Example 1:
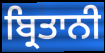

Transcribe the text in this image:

ਬ੍ਰਿਤਾਨੀ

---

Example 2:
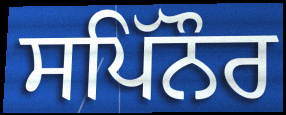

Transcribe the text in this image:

ਸਪਿੱਨੌਰ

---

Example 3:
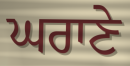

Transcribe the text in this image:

ਘਰਾਣੇ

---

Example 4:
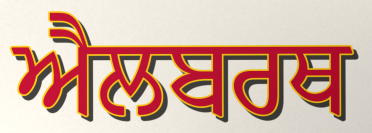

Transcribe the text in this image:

ਐਲਬਰਥ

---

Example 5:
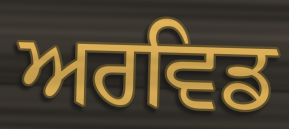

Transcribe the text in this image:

ਅਰਵਿਡ